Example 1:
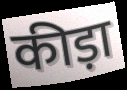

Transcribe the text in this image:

कीड़ा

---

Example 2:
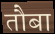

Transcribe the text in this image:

तौबा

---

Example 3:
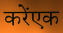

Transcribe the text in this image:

करेंएक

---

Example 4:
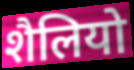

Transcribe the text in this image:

शैलियो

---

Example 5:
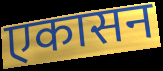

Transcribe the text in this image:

एकासन